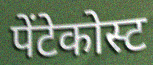
पेंटेकोस्ट